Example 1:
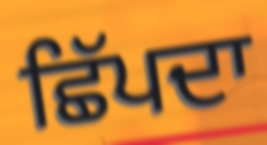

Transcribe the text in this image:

ਛਿੱਪਦਾ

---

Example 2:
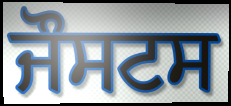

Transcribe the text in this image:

ਜੌਸਟਸ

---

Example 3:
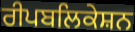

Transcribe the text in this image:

ਰੀਪਬਲਿਕੇਸ਼ਨ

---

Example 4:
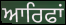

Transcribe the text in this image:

ਆਰਿਫਾਂ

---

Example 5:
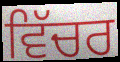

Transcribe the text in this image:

ਵਿੱਚਰ